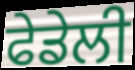
ਫੇਡੇਲੀ